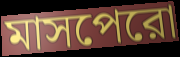
মাসপেরো